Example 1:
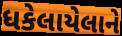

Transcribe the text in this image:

ધકેલાયેલાને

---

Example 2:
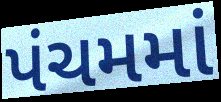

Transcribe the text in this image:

પંચમમાં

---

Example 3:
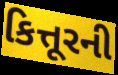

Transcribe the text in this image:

કિત્તૂરની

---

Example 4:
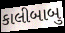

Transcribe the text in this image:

કાલીબાબુ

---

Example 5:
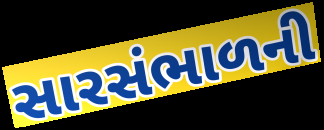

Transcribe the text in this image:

સારસંભાળની